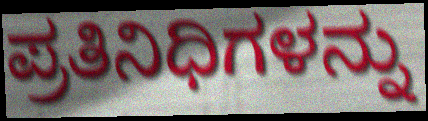
ಪ್ರತಿನಿಧಿಗಳನ್ನು